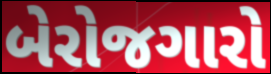
બેરોજગારો